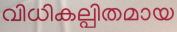
വിധികല്പിതമായ